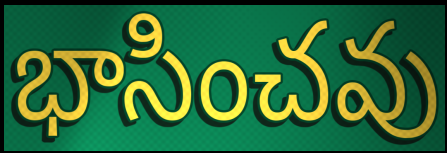
భాసించవు